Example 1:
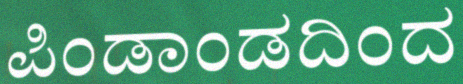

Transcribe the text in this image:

ಪಿಂಡಾಂಡದಿಂದ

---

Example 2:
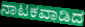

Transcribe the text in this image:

ನಾಟಕವಾಡಿದ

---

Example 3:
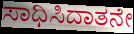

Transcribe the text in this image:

ಸಾಧಿಸಿದಾತನೇ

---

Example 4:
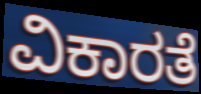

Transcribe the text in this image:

ವಿಕಾರತೆ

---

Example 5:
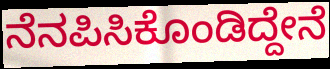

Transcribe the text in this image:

ನೆನಪಿಸಿಕೊಂಡಿದ್ದೇನೆ